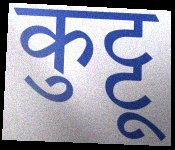
कुट्टू